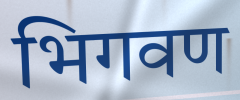
भिगवण